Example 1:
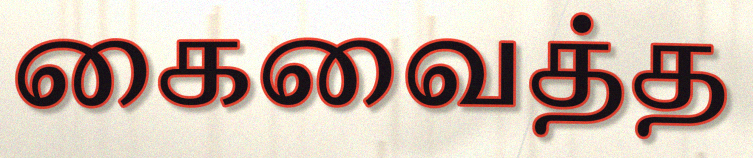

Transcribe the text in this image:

கைவைத்த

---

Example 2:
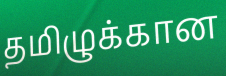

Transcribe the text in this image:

தமிழுக்கான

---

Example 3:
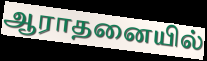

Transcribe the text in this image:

ஆராதனையில்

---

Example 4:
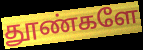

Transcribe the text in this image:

தூண்களே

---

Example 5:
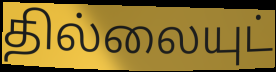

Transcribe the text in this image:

தில்லையுட்